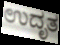
ಉದೃತ